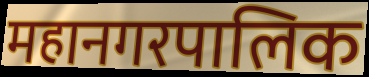
महानगरपालिक